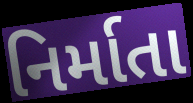
નિર્માતા